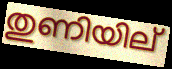
തുണിയില്